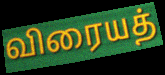
விரையத்